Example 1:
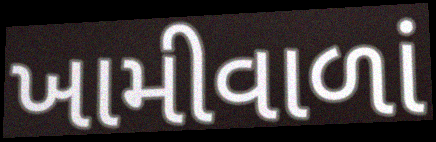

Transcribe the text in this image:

ખામીવાળાં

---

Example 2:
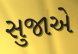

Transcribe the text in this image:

સુજાએ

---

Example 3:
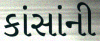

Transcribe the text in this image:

કાંસાંની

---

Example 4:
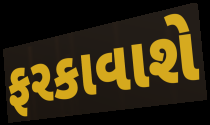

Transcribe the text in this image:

ફરકાવાશે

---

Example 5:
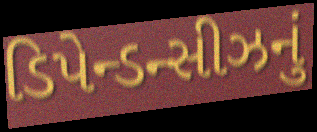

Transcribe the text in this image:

ડિપેન્ડન્સીઝનું